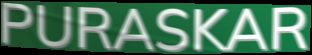
PURASKAR